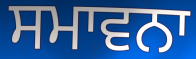
ਸਮਾਵਨਾ